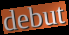
debut